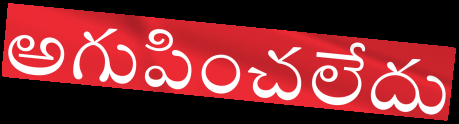
అగుపించలేదు